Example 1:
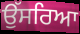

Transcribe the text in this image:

ਉੱਸਰਿਆ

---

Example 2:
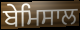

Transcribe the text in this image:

ਬੇਮਿਸਾਲ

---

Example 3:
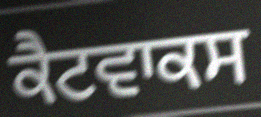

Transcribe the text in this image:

ਕੈਟਵਾਕਸ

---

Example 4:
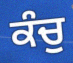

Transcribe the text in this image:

ਕੰਚੁ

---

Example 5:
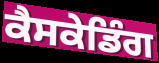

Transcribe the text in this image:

ਕੈਸਕੇਡਿੰਗ